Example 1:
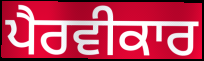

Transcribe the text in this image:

ਪੈਰਵੀਕਾਰ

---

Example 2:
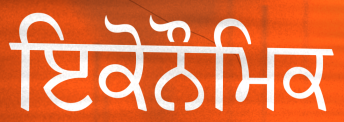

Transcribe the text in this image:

ਇਕੋਨੌਮਿਕ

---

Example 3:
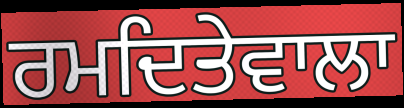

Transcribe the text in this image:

ਰਮਦਿਤੇਵਾਲਾ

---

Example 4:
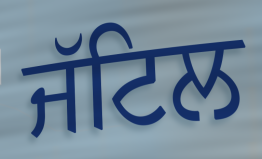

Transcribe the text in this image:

ਜੱਟਿਲ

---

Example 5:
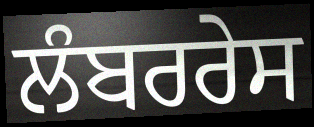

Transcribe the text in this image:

ਲੰਬਰਰੇਸ